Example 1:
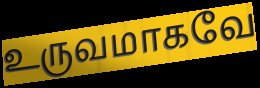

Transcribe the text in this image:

உருவமாகவே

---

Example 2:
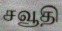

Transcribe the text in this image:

சவூதி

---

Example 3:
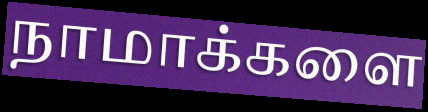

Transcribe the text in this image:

நாமாக்களை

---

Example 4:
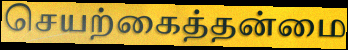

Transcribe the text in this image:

செயற்கைத்தன்மை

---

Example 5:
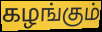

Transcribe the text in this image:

கழங்கும்